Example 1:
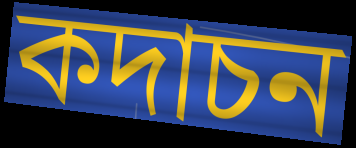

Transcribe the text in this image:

কদাচন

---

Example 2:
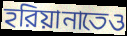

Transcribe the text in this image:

হরিয়ানাতেও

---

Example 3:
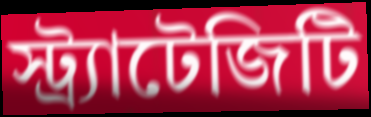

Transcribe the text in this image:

স্ট্র্যাটেজিটি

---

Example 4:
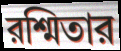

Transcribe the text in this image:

রশ্মিতার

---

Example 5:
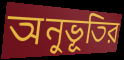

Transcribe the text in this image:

অনুভূতির